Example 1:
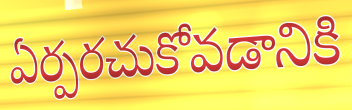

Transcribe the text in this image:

ఏర్పరచుకోవడానికి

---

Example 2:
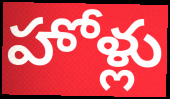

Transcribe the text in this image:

హోళ్లు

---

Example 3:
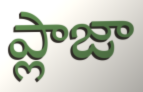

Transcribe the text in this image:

ప్లాజా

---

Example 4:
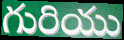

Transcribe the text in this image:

గురియు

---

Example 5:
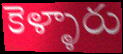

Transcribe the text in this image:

కెళ్ళారు